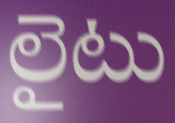
లైటు